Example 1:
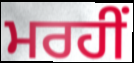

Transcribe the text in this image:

ਮਰਹੀਂ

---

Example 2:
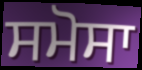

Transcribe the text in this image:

ਸਮੋਸਾ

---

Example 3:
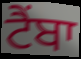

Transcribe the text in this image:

ਟੈਂਬਾ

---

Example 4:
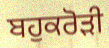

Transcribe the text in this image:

ਬਹੁਕਰੋੜੀ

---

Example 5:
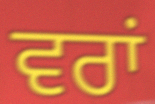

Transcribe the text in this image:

ਵਰਾਂ